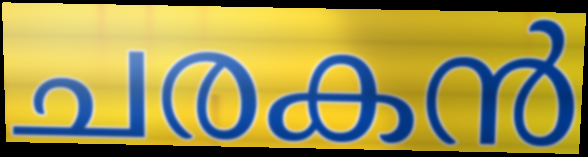
ചരകൻ